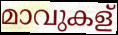
മാവുകള്